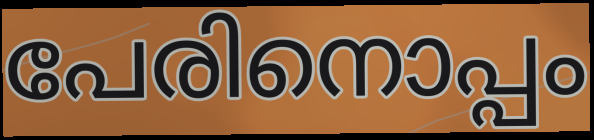
പേരിനൊപ്പം